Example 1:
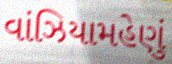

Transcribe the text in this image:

વાંઝિયામહેણું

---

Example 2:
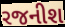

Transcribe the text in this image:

રજનીશ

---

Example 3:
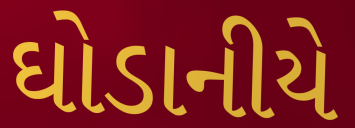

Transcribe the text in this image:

ઘોડાનીયે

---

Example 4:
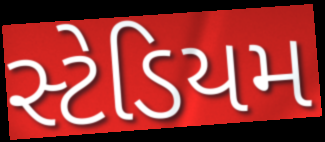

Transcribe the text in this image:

સ્ટેડિયમ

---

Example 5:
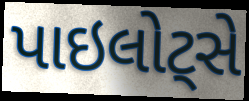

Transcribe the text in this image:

પાઇલોટ્સે